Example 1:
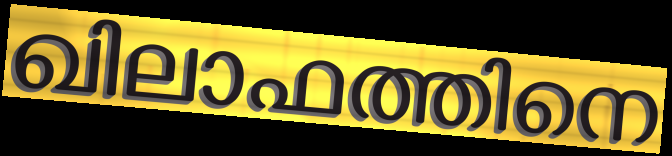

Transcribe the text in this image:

ഖിലാഫത്തിനെ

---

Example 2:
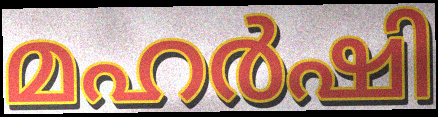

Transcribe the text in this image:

മഹർഷി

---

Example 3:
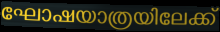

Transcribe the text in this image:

ഘോഷയാത്രയിലേക്ക്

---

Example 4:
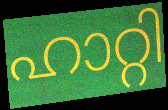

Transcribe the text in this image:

ഹാറ്റി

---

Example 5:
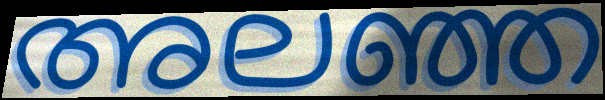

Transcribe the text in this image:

അലഞ്ഞ